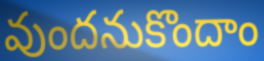
వుందనుకొందాం